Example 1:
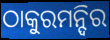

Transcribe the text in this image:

ଠାକୁରମନ୍ଦିର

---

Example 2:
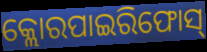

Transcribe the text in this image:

କ୍ଲୋରପାଇରିଫୋସ୍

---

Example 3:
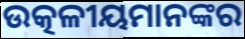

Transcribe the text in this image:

ଉତ୍କଳୀୟମାନଙ୍କର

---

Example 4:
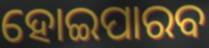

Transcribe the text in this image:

ହୋଇପାରବ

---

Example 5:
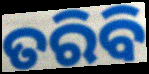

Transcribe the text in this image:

ତରିବି